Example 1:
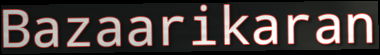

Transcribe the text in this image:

Bazaarikaran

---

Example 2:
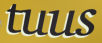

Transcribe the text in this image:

tuus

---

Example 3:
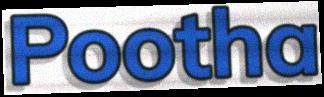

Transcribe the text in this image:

Pootha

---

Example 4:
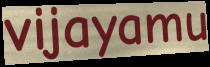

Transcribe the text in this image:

vijayamu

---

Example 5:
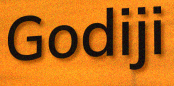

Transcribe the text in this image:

Godiji